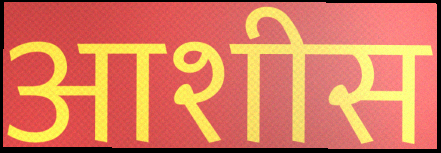
आशीस